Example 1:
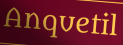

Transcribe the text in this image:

Anquetil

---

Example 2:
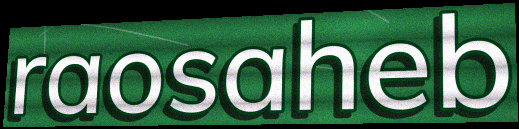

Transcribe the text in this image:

raosaheb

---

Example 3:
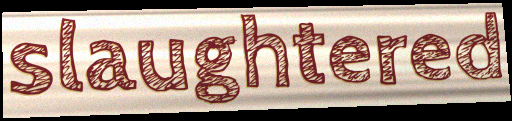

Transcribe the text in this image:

slaughtered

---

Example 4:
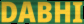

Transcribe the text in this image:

DABHI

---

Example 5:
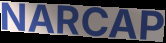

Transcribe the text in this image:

NARCAP